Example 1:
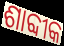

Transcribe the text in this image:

ଶାବ୍ଦୀକ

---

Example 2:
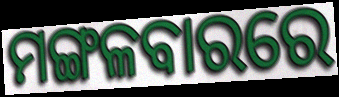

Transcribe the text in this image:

ମଙ୍ଗଳବାରରେ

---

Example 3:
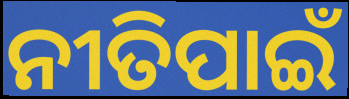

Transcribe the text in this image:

ନୀତିପାଇଁ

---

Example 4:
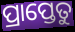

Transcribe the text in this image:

ପ୍ରାପ୍ତେତୁ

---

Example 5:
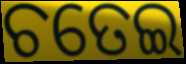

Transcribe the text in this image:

ଚତେଇ